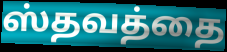
ஸ்தவத்தை